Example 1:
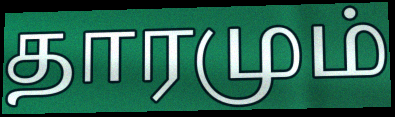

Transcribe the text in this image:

தாரமும்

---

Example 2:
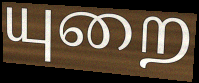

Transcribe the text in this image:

யுறை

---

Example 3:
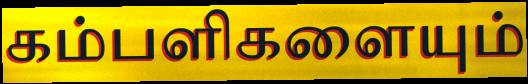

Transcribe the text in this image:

கம்பளிகளையும்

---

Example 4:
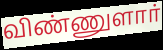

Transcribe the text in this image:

விண்ணுளார்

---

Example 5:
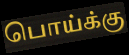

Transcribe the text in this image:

பொய்க்கு